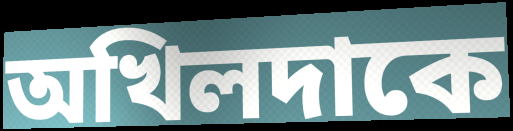
অখিলদাকে